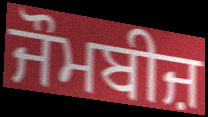
ਜੌਮਬੀਜ਼